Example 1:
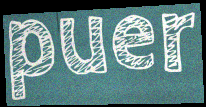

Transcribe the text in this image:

puer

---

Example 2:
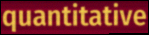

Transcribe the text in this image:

quantitative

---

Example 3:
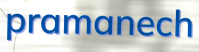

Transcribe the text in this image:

pramanech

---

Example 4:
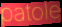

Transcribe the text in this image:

patole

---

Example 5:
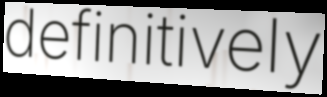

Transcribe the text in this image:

definitively